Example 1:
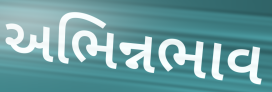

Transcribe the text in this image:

અભિન્નભાવ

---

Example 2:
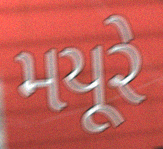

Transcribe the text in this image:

મયૂરે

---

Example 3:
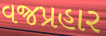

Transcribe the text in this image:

વજ્રપ્રહાર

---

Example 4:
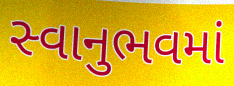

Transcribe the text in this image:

સ્વાનુભવમાં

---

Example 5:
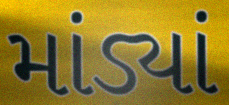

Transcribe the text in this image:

માંડ્યાં